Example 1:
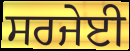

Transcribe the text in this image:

ਸਰਜੇਈ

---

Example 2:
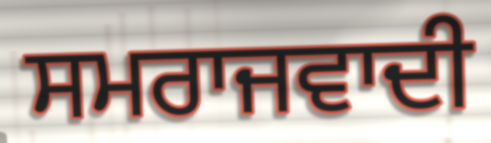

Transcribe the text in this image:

ਸਮਰਾਜਵਾਦੀ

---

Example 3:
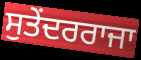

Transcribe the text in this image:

ਸੁਤੇਂਦਰਰਾਜਾ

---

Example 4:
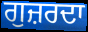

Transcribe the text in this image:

ਗੁਜ਼ਰਦਾ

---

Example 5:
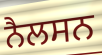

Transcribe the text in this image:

ਨੈਲਸਨ